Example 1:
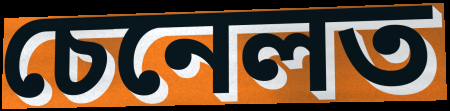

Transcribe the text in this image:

চেনেলত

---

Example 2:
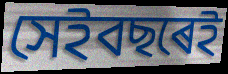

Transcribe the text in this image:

সেইবছৰেই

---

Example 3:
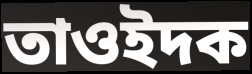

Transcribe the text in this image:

তাওইদক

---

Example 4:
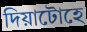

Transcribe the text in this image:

দিয়াটোহে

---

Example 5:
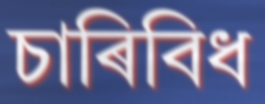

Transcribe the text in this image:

চাৰিবিধ